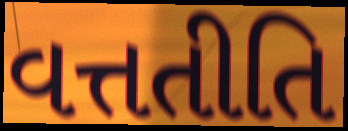
વત્તતીતિ